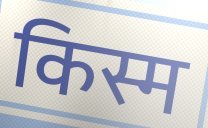
किस्म